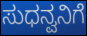
ಸುಧನ್ವನಿಗೆ